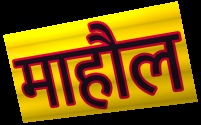
माहौल